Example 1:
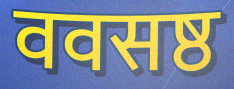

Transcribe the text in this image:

ववसष्ठ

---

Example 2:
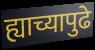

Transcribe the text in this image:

ह्याच्यापुढे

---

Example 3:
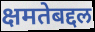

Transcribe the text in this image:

क्षमतेबद्दल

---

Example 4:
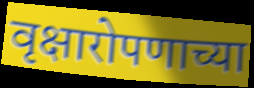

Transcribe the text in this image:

वृक्षारोपणाच्या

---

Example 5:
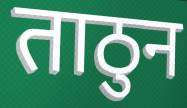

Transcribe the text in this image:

ताठुन